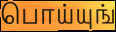
பொய்யுங்